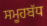
ਸਮੂਹਬੱਧ